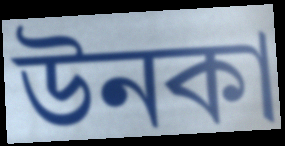
উনকা